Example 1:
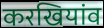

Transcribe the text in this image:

करखियांव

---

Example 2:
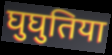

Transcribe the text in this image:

घुघुतिया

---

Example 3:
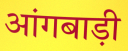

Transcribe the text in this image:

आंगबाड़ी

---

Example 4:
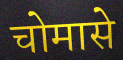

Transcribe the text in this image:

चोमासे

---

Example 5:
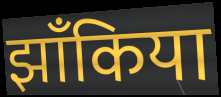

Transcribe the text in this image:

झाँकिया